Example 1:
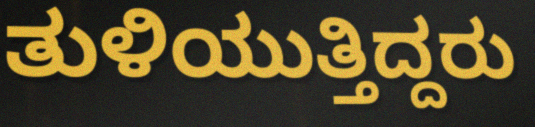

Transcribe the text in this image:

ತುಳಿಯುತ್ತಿದ್ದರು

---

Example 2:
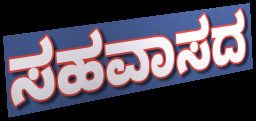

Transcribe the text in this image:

ಸಹವಾಸದ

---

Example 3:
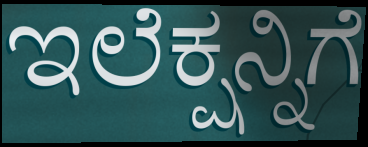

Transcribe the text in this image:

ಇಲೆಕ್ಷನ್ನಿಗೆ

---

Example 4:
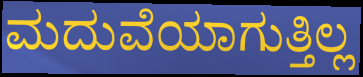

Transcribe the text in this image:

ಮದುವೆಯಾಗುತ್ತಿಲ್ಲ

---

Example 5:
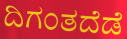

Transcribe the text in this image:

ದಿಗಂತದೆಡೆ